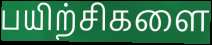
பயிற்சிகளை